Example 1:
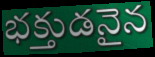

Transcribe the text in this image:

భక్తుడనైన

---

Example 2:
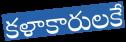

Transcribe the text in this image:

కళాకారులకే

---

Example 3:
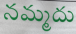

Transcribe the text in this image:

నమ్మదు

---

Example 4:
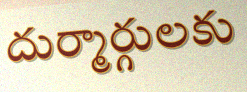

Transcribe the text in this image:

దుర్మార్గులకు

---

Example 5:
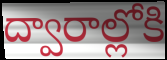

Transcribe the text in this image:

ద్వారాల్లోకి